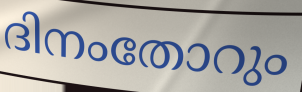
ദിനംതോറും